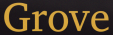
Grove